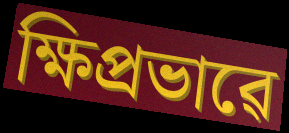
ক্ষিপ্ৰভাৱে